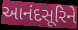
આનંદસૂરિને